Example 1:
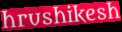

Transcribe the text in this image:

hrushikesh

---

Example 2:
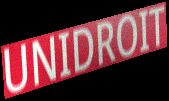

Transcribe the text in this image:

UNIDROIT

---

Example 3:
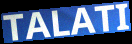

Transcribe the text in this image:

TALATI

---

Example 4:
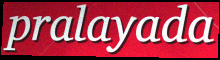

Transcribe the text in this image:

pralayada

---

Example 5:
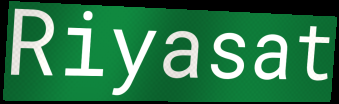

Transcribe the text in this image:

Riyasat